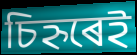
চিহ্নৰেই